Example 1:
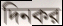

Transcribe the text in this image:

দিনকর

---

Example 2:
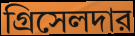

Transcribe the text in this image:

গ্রিসেলদার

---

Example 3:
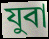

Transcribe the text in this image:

যুবা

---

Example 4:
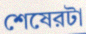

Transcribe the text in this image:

শেষেরটা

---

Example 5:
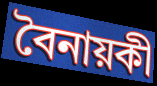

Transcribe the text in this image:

বৈনায়কী